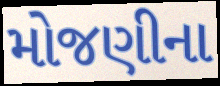
મોજણીના